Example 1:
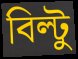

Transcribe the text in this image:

বিল্টু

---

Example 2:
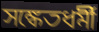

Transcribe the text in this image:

সঙ্কেতধর্মী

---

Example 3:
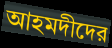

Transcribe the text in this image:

আহমদীদের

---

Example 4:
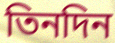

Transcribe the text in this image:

তিনদিন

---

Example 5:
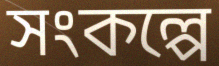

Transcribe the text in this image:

সংকল্পে